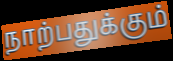
நாற்பதுக்கும்